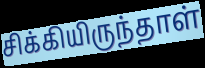
சிக்கியிருந்தாள்